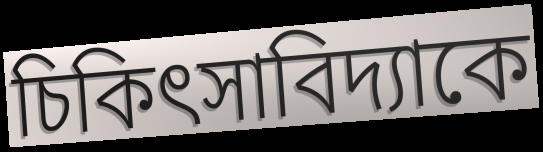
চিকিৎসাবিদ্যাকে